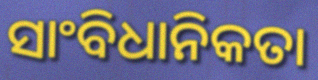
ସାଂବିଧାନିକତା